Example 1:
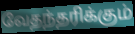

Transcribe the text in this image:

வேதந்தரிக்கும்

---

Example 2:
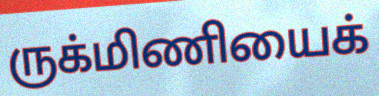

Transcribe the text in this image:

ருக்மிணியைக்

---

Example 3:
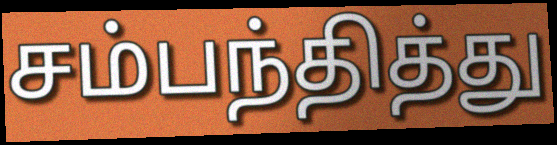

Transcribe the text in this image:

சம்பந்தித்து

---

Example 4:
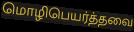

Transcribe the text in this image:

மொழிபெயர்த்தவை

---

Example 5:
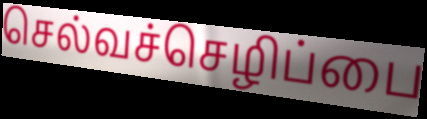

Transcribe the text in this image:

செல்வச்செழிப்பை